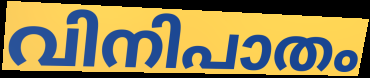
വിനിപാതം